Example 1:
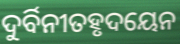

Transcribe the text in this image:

ଦୁର୍ବିନୀତହୃଦୟେନ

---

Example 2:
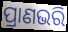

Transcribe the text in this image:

ପ୍ରାଣଭରି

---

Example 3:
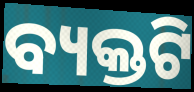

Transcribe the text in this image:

ବ୍ୟକ୍ତଟି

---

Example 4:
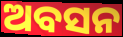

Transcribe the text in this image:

ଅବସନ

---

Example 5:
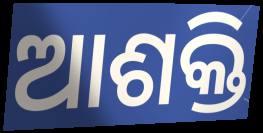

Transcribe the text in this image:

ଆଶକ୍ତି